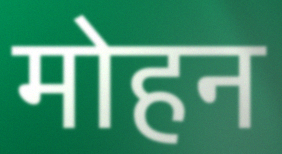
मोहन